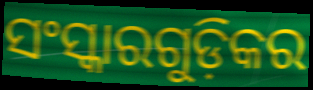
ସଂସ୍କାରଗୁଡ଼ିକର